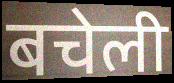
बचेली